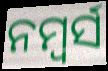
ନମ୍ୱର୍ସ